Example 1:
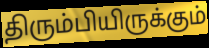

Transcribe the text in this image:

திரும்பியிருக்கும்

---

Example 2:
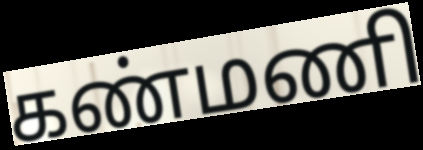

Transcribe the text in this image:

கண்மணி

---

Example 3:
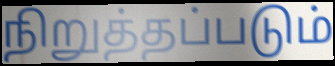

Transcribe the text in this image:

நிறுத்தப்படும்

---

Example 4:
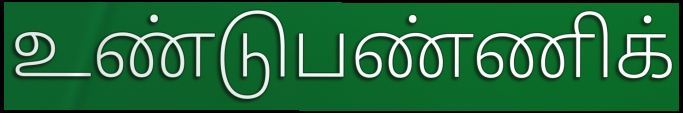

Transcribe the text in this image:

உண்டுபண்ணிக்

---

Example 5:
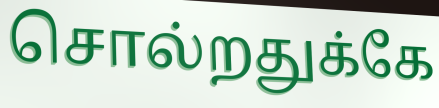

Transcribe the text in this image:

சொல்றதுக்கே